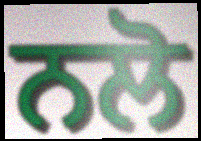
ਨਲੋ